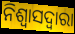
ନିଶ୍ୱାସଦ୍ୱାରା